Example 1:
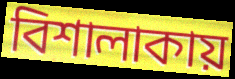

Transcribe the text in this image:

বিশালাকায়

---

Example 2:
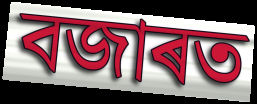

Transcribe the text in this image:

বজাৰত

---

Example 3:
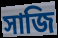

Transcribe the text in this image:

সাজি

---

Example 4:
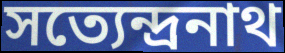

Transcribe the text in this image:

সত্যেন্দ্ৰনাথ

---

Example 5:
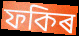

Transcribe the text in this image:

ফকিৰ